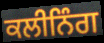
ਕਲੀਨਿੰਗ